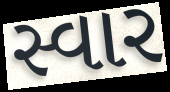
સ્વાર